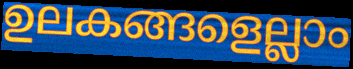
ഉലകങ്ങളെല്ലാം